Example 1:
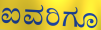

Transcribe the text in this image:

ಐವರಿಗೂ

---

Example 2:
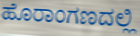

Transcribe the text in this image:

ಹೊರಾಂಗಣದಲ್ಲಿ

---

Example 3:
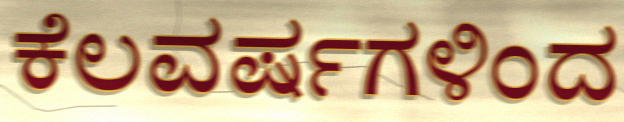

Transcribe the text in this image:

ಕೆಲವರ್ಷಗಳಿಂದ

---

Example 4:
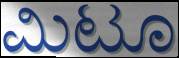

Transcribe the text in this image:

ಮಿಟೂ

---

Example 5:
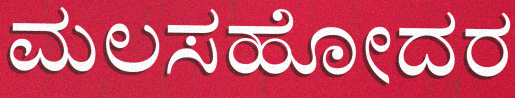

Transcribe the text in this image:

ಮಲಸಹೋದರ